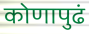
कोणापुढं